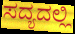
ಸದ್ಯದಲ್ಲಿ